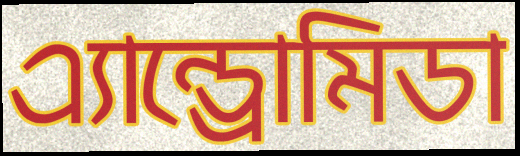
এ্যান্ড্রোমিডা